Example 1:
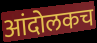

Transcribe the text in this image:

आंदोलकच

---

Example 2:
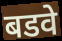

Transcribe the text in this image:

बडवे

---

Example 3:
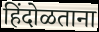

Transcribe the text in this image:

हिंदोळताना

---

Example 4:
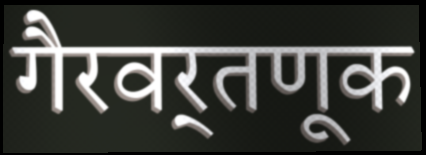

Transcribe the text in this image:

गैरवर्तणूक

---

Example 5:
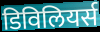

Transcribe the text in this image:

डिविलियर्स